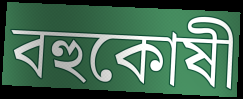
বহুকোষী